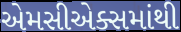
એમસીએક્સમાંથી